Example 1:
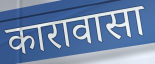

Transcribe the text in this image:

कारावासा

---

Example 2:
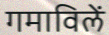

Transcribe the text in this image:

गमाविलें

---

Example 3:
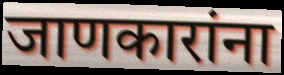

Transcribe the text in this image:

जाणकारांना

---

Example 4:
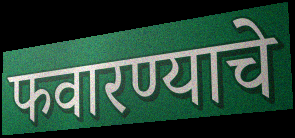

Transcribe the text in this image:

फवारण्याचे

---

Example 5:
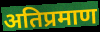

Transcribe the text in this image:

अतिप्रमाण